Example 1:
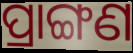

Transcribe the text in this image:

ପ୍ରାଙ୍ଗଣ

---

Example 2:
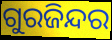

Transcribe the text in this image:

ଗୁରଜିନ୍ଦର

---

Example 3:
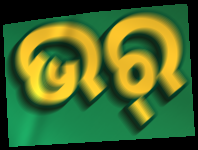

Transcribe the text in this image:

ଭର୍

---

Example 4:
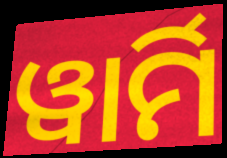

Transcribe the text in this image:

ୱାର୍ମି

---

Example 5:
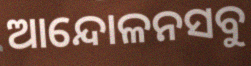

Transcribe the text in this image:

ଆନ୍ଦୋଳନସବୁ